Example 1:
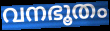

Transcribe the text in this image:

വനഭൂതം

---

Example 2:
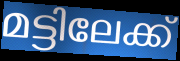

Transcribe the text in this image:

മട്ടിലേക്ക്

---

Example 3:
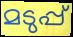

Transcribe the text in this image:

മടുപ്പ്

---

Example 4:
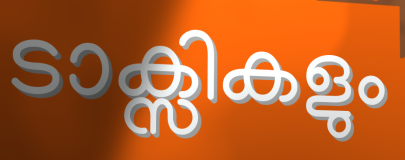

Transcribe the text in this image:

ടാക്സികളും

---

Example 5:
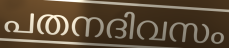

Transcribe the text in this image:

പതനദിവസം